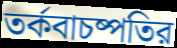
তর্কবাচষ্পতির